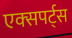
एक्‍सपर्ट्स